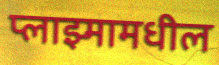
प्लाझ्मामधील